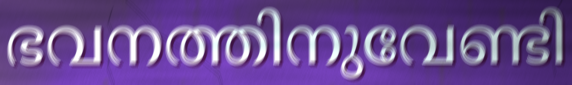
ഭവനത്തിനുവേണ്ടി